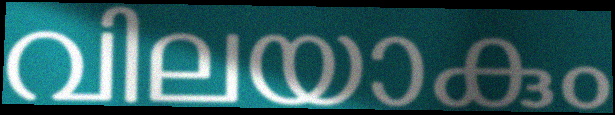
വിലയാകും